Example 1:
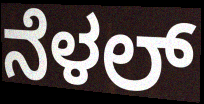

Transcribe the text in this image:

ನೆಳಲ್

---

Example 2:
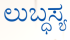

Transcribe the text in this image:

ಲುಬ್ಧಸ್ಯ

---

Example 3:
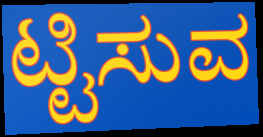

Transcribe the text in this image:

ಟ್ಟಿಸುವ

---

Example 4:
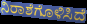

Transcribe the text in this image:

ನಿರಾಶೆಗೊಳಿಸಿದೆ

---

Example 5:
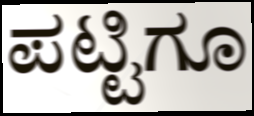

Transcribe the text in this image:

ಪಟ್ಟಿಗೂ